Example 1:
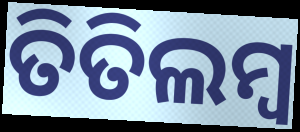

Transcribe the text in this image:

ତିତିଲମ୍ଵ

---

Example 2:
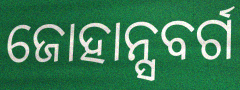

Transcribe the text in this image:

ଜୋହାନ୍ସବର୍ଗ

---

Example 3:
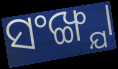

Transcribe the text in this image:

ସଂଙ୍ଖ୍ଯା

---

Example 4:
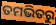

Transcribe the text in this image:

ତମଭିତରୁ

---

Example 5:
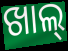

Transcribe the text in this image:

ଖାଲ୍